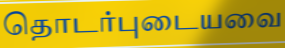
தொடர்புடையவை